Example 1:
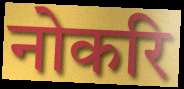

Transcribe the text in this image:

नोकरि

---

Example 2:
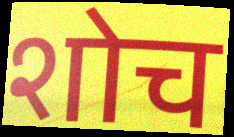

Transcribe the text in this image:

शोच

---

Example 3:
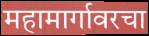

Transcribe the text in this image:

महामार्गावरचा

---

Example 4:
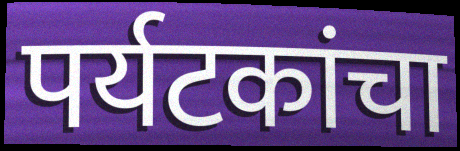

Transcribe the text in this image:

पर्यटकांचा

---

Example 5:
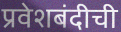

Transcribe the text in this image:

प्रवेशबंदीची